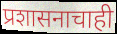
प्रशासनाचाही